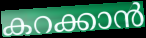
കറക്കാൻ